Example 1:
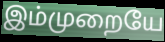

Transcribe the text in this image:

இம்முறையே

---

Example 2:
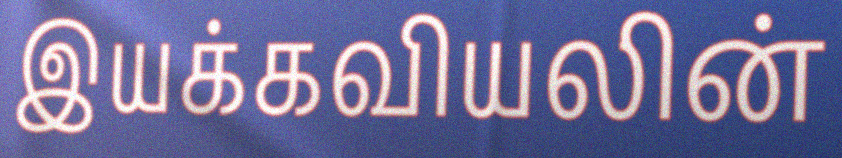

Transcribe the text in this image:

இயக்கவியலின்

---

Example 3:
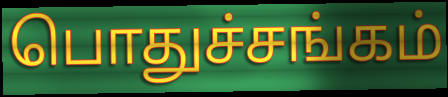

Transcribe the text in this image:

பொதுச்சங்கம்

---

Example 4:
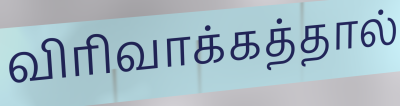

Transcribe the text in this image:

விரிவாக்கத்தால்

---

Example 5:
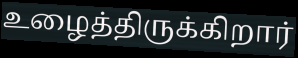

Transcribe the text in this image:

உழைத்திருக்கிறார்